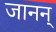
जानन्